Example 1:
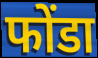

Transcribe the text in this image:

फोंडा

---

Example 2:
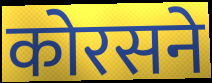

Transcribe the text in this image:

कोरसने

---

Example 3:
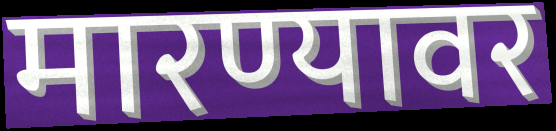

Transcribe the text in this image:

मारण्यावर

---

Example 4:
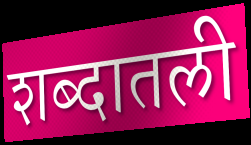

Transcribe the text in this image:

शब्दातली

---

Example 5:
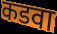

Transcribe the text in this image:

कडवा